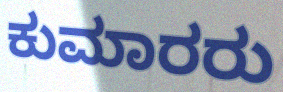
ಕುಮಾರರು